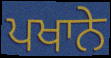
ਪਖਾਨੇ